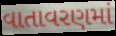
વાતાવરણમાં